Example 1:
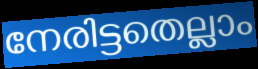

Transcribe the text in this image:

നേരിട്ടതെല്ലാം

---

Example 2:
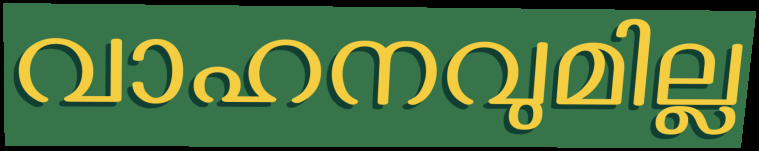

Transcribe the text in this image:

വാഹനവുമില്ല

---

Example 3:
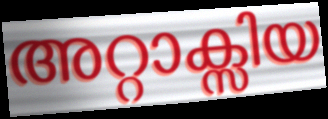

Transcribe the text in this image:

അറ്റാക്സിയ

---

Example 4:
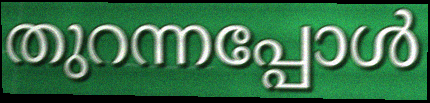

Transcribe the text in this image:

തുറന്നപ്പോൾ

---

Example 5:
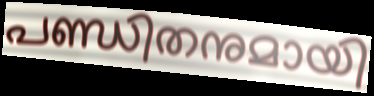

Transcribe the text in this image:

പണ്ഡിതനുമായി